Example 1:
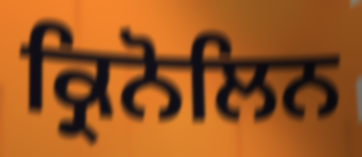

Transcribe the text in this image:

ਕ੍ਰਿਨੋਲਿਨ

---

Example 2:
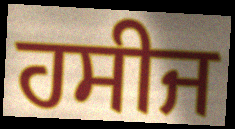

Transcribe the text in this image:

ਹਸੀਜ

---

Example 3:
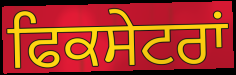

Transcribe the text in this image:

ਫਿਕਸੇਟਰਾਂ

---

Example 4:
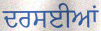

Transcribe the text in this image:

ਦਰਸਈਆਂ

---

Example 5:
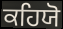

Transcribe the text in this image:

ਕਹਿਯੋ